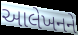
આલેખનને